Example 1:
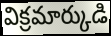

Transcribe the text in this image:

విక్రమార్కుడి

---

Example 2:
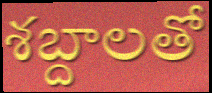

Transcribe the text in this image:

శబ్దాలతో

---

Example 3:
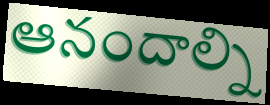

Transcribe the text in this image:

ఆనందాల్ని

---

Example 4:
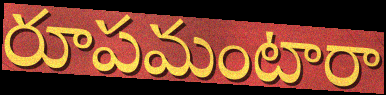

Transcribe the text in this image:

రూపమంటారా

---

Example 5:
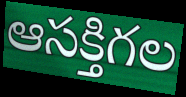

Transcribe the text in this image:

ఆసక్తిగల